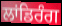
ਲਾਂਡਿਰੰਗ